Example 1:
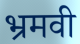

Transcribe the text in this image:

भ्रमवी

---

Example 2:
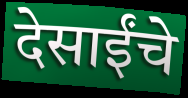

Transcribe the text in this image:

देसाईंचे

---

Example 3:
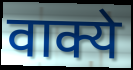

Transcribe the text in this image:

वाक्ये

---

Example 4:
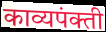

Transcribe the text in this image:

काव्यपंक्ती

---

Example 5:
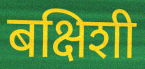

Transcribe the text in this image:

बक्षिशी